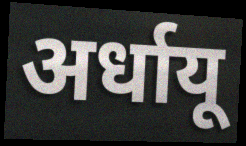
अर्धायू